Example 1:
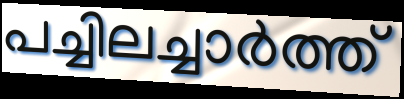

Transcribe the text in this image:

പച്ചിലച്ചാർത്ത്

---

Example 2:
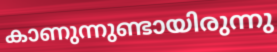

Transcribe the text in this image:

കാണുന്നുണ്ടായിരുന്നു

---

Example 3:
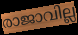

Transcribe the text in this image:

രാജാവില്ല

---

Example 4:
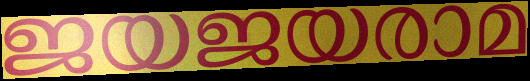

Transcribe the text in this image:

ജയജയരാമ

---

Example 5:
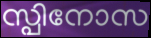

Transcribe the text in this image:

സ്പിനോസ